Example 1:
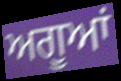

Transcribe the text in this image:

ਅਗੂਆਂ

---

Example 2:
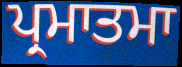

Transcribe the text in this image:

ਪ੍ਰਮਾਤਮਾ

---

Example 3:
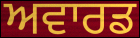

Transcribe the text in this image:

ਅਵਾਰਡ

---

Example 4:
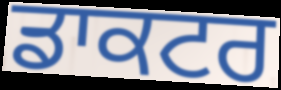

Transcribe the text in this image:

ਡਾਕਟਰ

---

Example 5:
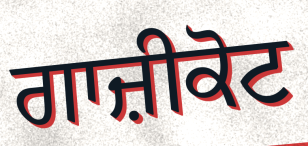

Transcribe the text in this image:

ਗਾਜ਼ੀਕੋਟ